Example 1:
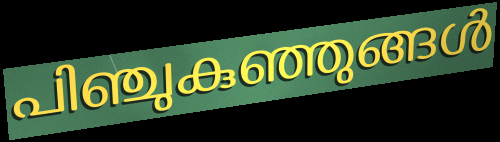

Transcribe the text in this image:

പിഞ്ചുകുഞ്ഞുങ്ങൾ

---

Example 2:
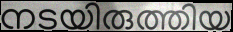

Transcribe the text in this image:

നടയിരുത്തിയ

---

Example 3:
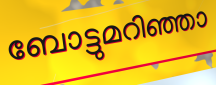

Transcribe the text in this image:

ബോട്ടുമറിഞ്ഞാ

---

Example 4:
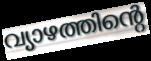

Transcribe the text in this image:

വ്യാഴത്തിന്റെ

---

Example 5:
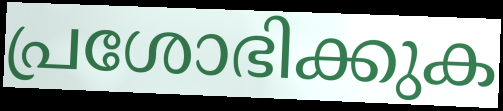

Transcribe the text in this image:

പ്രശോഭിക്കുക